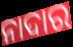
ନାଦାର